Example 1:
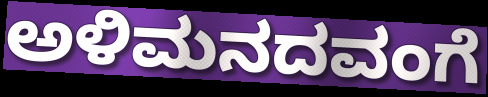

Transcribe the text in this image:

ಅಳಿಮನದವಂಗೆ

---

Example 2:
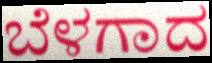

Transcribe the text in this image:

ಬೆಳಗಾದ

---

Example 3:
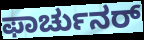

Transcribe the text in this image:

ಫಾರ್ಚುನರ್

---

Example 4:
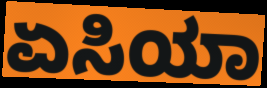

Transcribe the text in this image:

ಏಸಿಯಾ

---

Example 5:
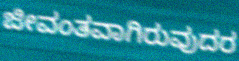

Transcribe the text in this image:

ಜೀವಂತವಾಗಿರುವುದರ